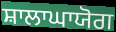
ਸ਼ਾਲਾਘਾਯੋਗ